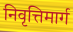
निवृत्तिमार्ग